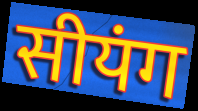
सीयंग